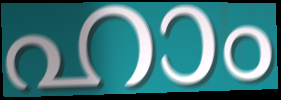
ഹാം